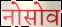
नोसोव